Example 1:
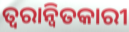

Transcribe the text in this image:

ତ୍ୱରାନ୍ୱିତକାରୀ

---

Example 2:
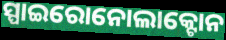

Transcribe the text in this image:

ସ୍ପାଇରୋନୋଲାକ୍ଟୋନ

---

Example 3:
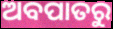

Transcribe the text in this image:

ଅବପାତରୁ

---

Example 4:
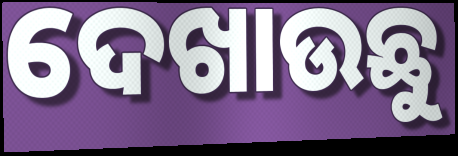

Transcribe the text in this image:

ଦେଖାଉଛୁ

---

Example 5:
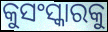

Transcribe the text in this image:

କୁସଂସ୍କାରକୁ